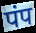
पंप